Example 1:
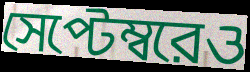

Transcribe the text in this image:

সেপ্টেম্বরেও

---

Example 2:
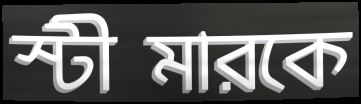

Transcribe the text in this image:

স্টীমারকে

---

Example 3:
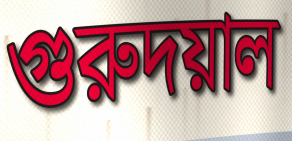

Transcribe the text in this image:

গুরুদয়াল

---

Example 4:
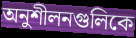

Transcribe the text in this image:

অনুশীলনগুলিকে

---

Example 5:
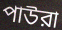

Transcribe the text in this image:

পাউরা